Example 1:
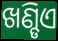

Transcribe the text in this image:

ଖଣ୍ଡିଏ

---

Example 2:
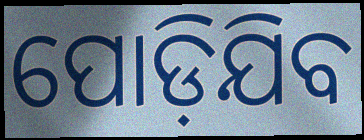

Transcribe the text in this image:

ପୋଡ଼ିଯିବ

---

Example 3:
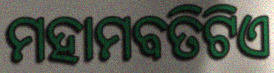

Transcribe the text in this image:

ମହାମବତିଟିଏ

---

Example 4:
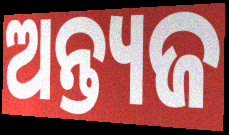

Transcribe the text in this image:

ଅନ୍ତ୍ୟଜ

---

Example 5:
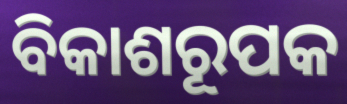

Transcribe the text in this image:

ବିକାଶରୂପକ